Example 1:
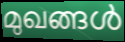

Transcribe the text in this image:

മുഖങ്ങൾ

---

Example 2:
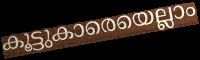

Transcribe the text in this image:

കൂട്ടുകാരെയെല്ലാം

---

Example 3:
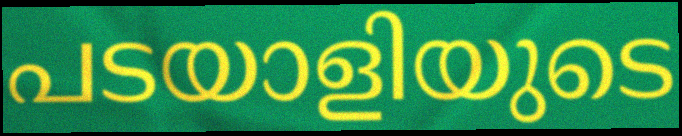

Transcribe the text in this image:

പടയാളിയുടെ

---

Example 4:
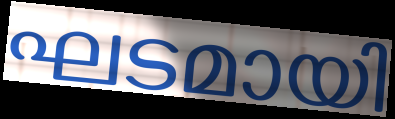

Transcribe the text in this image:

ഘടമായി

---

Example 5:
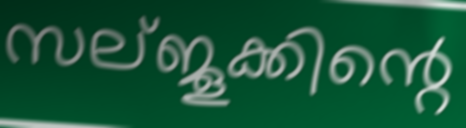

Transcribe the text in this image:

സല്ജൂക്കിന്റെ